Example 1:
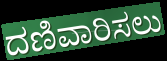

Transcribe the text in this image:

ದಣಿವಾರಿಸಲು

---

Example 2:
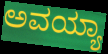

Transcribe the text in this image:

ಅವಯ್ಯಾ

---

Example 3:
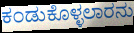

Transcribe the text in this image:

ಕಂಡುಕೊಳ್ಳಲಾರನು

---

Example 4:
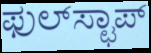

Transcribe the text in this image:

ಫುಲ್‍ಸ್ಟಾಪ್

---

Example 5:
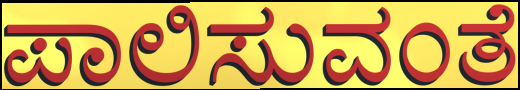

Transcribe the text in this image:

ಪಾಲಿಸುವಂತೆ